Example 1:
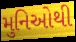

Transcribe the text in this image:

મુનિઓથી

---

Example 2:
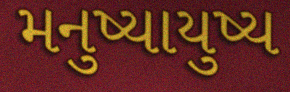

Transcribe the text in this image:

મનુષ્યાયુષ્ય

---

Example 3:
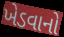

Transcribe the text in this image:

ખેડવાનો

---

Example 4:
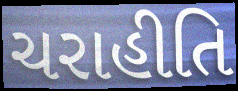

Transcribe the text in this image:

ચરાહીતિ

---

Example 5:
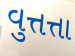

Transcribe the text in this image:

વુત્તત્તા